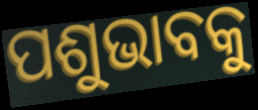
ପଶୁଭାବକୁ